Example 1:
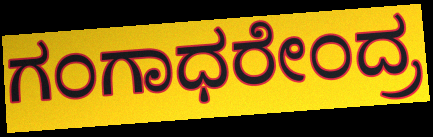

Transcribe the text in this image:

ಗಂಗಾಧರೇಂದ್ರ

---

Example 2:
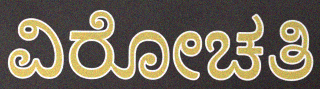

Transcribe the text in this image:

ವಿರೋಚತಿ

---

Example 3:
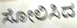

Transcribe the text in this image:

ಸೋಲಿಸಿದ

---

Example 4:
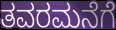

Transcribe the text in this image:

ತವರಮನೆಗೆ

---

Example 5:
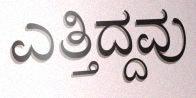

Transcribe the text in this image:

ಎತ್ತಿದ್ದವು